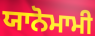
ਯਾਨੋਮਾਮੀ